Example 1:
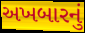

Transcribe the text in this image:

અખબારનું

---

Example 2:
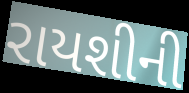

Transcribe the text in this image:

રાયશીની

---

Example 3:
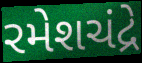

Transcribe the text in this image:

રમેશચંદ્રે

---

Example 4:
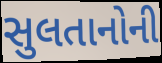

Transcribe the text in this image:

સુલતાનોની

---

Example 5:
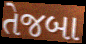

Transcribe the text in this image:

તેજબા